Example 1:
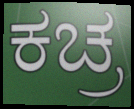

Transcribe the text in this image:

ಕಚ್ರ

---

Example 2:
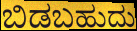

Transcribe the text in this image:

ಬಿಡಬಹುದು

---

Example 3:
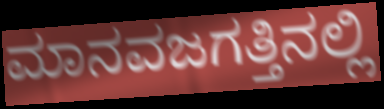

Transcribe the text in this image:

ಮಾನವಜಗತ್ತಿನಲ್ಲಿ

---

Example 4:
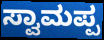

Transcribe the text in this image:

ಸ್ವಾಮಪ್ಪ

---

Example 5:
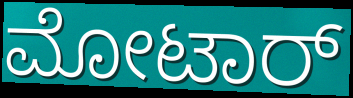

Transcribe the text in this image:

ಮೋಟಾರ್